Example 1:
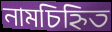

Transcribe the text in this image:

নামচিহ্নিত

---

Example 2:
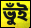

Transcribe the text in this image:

ভুঁই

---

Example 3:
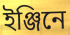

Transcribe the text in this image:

ইঞ্জিনে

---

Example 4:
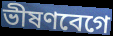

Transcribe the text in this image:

ভীষণবেগে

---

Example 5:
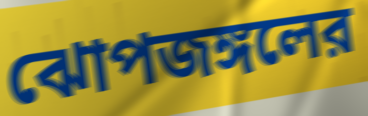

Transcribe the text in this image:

ঝোপজঙ্গলের